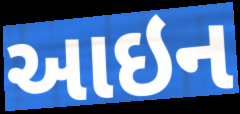
આઇન